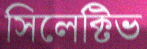
সিলেক্টিভ